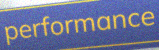
performance